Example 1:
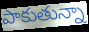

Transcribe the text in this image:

పాకుతున్నా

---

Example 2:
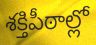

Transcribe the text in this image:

శక్తిపీఠాల్లో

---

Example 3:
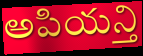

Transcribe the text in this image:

అపియన్తి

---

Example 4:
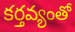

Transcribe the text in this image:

కర్తవ్యంతో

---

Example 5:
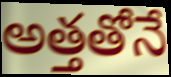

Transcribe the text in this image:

అత్తతోనే